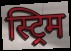
स्ट्रिम